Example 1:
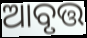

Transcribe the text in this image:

ଆବୃତ୍ତ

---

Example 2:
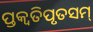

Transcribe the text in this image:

ପ୍ତକ୍ଵତିପୃତସମ୍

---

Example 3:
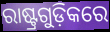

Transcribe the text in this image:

ରାଷ୍ଟ୍ରଗୁଡ଼ିକରେ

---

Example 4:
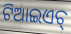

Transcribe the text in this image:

ଟିଆଇଏଚ୍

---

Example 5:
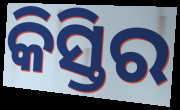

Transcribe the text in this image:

କିସ୍ତିର